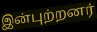
இன்புற்றனர்